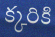
క్కరికి